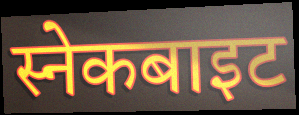
स्नेकबाइट